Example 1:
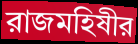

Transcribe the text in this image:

রাজমহিষীর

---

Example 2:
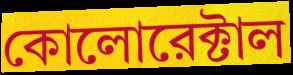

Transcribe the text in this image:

কোলোরেক্টাল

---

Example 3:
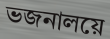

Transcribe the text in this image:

ভজনালয়ে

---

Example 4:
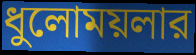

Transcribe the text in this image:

ধুলোময়লার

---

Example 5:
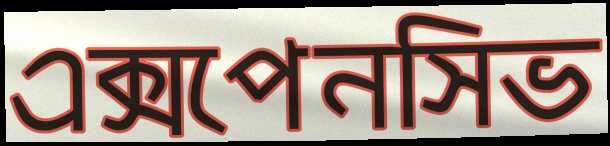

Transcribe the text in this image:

এক্সপেনসিভ